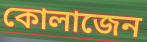
কোলাজেন